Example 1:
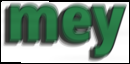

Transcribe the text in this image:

mey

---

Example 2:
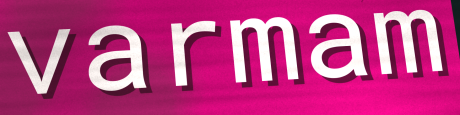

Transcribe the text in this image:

varmam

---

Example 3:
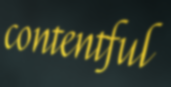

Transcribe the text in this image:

contentful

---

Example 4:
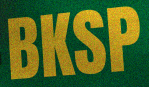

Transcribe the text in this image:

BKSP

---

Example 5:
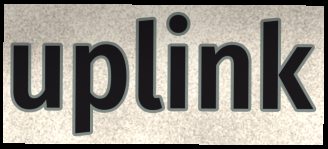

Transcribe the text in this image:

uplink